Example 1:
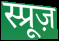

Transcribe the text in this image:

स्प्रूज़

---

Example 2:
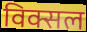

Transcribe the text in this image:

विक्सल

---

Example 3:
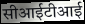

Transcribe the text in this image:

सीआईटीआई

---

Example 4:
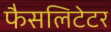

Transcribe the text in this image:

फैसलिटेटर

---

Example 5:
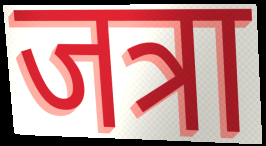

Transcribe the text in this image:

जत्रा